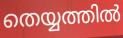
തെയ്യത്തിൽ